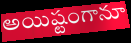
అయిష్టంగానూ